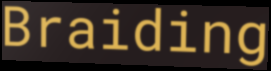
Braiding